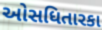
ઓસધિતારકા